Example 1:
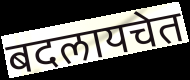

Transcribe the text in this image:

बदलायचेत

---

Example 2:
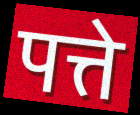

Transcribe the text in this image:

पत्ते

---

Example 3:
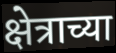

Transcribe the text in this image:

क्षेत्राच्या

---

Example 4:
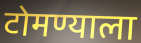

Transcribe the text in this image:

टोमण्याला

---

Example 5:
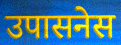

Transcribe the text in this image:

उपासनेस